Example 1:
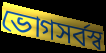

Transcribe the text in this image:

ভোগসর্বস্ব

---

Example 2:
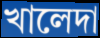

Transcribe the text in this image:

খালেদা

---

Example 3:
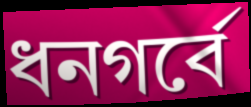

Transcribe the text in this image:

ধনগর্বে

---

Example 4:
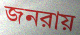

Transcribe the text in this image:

জনরায়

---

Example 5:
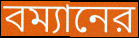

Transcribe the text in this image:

বম্যানের